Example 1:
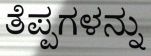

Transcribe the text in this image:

ತೆಪ್ಪಗಳನ್ನು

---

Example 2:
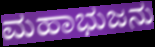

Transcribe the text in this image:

ಮಹಾಭುಜನು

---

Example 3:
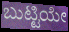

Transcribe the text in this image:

ಬುಟ್ಟಿಯೇ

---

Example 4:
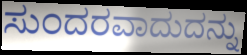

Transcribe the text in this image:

ಸುಂದರವಾದುದನ್ನು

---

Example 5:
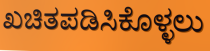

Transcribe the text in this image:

ಖಚಿತಪಡಿಸಿಕೊಳ್ಳಲು